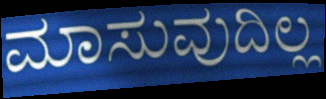
ಮಾಸುವುದಿಲ್ಲ